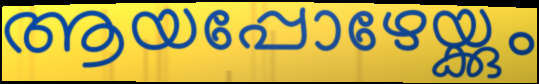
ആയപ്പോഴേയ്ക്കും